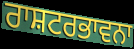
ਰਾਸ਼ਟਰਭਾਵਨਾ